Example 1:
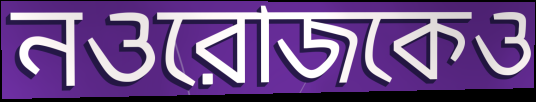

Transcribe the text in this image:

নওরোজকেও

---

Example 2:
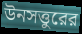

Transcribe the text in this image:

উনসত্তুরের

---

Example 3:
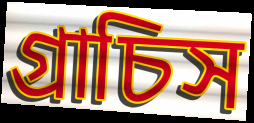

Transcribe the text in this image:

গ্রাচিস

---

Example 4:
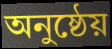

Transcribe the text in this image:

অনুষ্ঠেয়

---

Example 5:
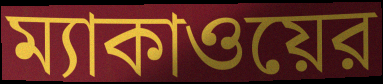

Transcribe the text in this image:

ম্যাকাওয়ের